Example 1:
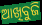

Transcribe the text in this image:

ଆଖିବୁଜି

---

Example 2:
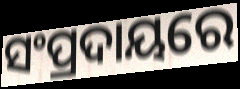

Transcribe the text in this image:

ସଂପ୍ରଦାୟରେ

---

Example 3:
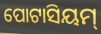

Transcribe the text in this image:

ପୋଟାସିୟମ୍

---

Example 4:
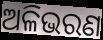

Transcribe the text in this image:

ଅଳିଭରଣ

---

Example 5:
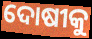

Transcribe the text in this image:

ଦୋଷୀକୁ